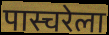
पास्चरेला